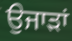
ਉਜਾੜਾਂ